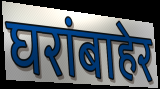
घरांबाहेर